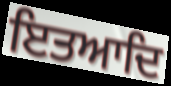
ਇਤਆਦਿ